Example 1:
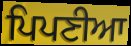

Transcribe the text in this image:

ਪਿਪਣੀਆ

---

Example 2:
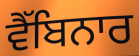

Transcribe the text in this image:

ਵੈੱਬਿਨਾਰ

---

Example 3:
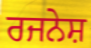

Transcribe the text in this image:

ਰਜਨੇਸ਼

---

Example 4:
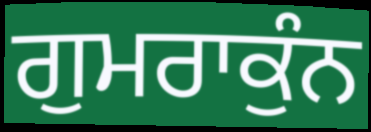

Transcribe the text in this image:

ਗੁਮਰਾਕੁੰਨ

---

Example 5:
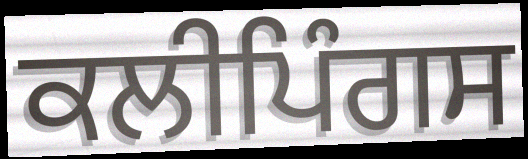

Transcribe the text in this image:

ਕਲੀਪਿੰਗਸ